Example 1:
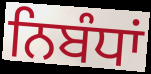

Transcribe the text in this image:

ਨਿਬੰਧਾਂ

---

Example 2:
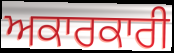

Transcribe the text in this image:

ਅਕਾਰਕਾਰੀ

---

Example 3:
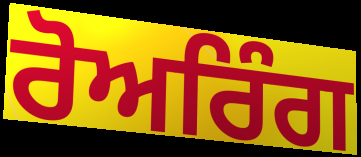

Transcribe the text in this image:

ਰੋਅਰਿੰਗ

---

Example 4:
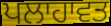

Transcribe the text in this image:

ਪਲਾਹਾਵਤ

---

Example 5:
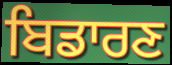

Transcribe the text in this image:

ਬਿਡਾਰਣ